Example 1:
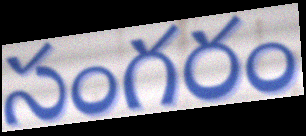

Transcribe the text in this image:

సంగరం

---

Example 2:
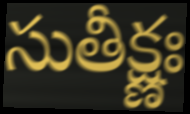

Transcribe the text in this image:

సుతీక్ష్ణః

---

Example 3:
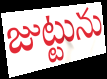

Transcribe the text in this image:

జుట్టును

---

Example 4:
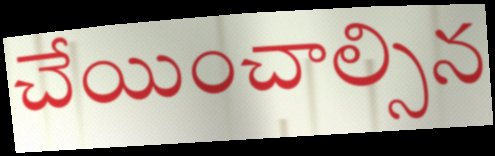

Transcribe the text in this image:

చేయించాల్సిన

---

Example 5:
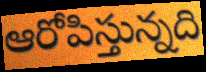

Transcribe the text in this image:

ఆరోపిస్తున్నది